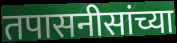
तपासनीसांच्या